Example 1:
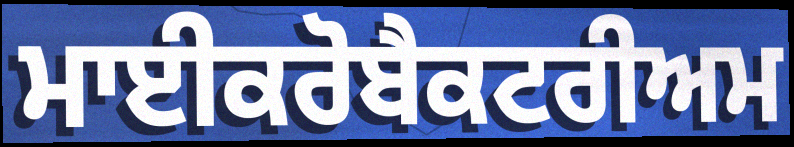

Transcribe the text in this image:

ਮਾਈਕਰੋਬੈਕਟਰੀਅਮ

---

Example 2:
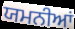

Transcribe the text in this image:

ਯਮਨੀਆਂ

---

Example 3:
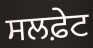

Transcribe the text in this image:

ਸਲਫ਼ੇਟ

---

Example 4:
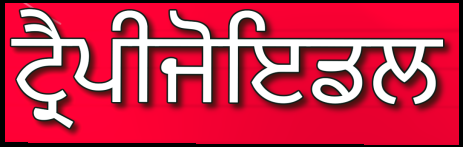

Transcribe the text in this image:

ਟ੍ਰੈਪੀਜੋਇਡਲ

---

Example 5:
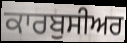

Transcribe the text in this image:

ਕਾਰਬੁਸੀਅਰ